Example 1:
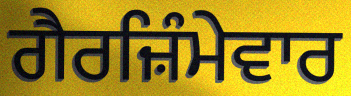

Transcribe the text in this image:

ਗੈਰਜ਼ਿੰਮੇਵਾਰ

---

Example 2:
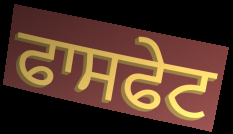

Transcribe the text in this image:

ਫਾਸਫੇਟ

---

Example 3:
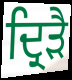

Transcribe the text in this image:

ਦ੍ਰਿੜੈ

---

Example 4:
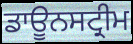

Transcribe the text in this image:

ਡਾਊਨਸਟ੍ਰੀਮ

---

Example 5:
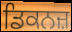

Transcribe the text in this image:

ਡਿਕਨਜ਼